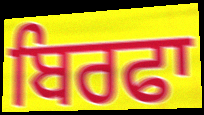
ਬਿਰਫਾ